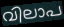
വിലാപ